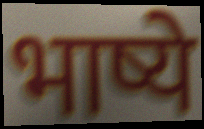
भाष्ये